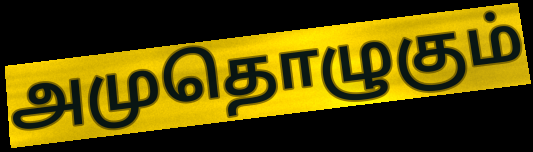
அமுதொழுகும்